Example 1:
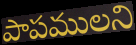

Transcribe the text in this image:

పాపములని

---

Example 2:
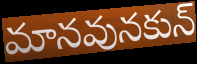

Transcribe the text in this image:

మానవునకున్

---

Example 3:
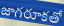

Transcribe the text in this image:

జాగరూకతో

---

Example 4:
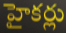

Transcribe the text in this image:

హైకర్లు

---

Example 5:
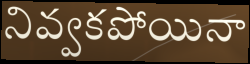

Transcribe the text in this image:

నివ్వకపోయినా